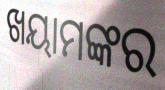
ଖୟାମଙ୍କର